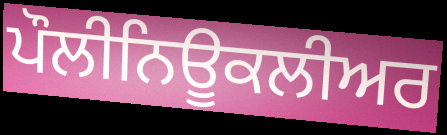
ਪੌਲੀਨਿਊਕਲੀਅਰ